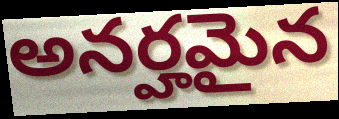
అనర్హమైన